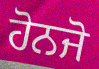
ਹੋਨਜੋ